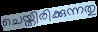
ചെയ്തിരിക്കുന്നതു